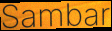
Sambar